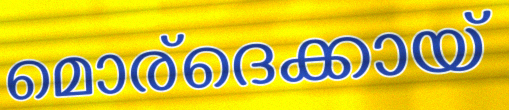
മൊര്ദെക്കായ്